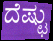
ದೆಷ್ಟು